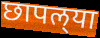
छापल्या